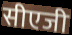
सीएजी